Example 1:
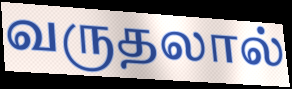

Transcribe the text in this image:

வருதலால்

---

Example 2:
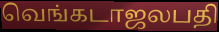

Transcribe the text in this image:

வெங்கடாஜலபதி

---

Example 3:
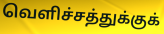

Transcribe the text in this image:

வெளிச்சத்துக்குக்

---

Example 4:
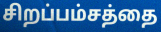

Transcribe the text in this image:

சிறப்பம்சத்தை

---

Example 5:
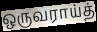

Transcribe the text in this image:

ஒருவராய்த்